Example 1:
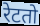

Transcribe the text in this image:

रेटतो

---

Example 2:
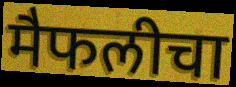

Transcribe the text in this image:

मैफलीचा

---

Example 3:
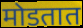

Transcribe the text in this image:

मोडतात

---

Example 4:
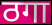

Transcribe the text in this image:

ठगा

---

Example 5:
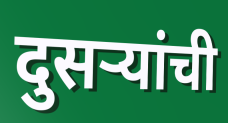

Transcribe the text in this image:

दुसऱ्यांची